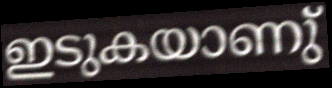
ഇടുകയാണു്